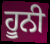
ਹੂਨੀ